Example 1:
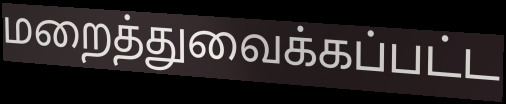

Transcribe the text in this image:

மறைத்துவைக்கப்பட்ட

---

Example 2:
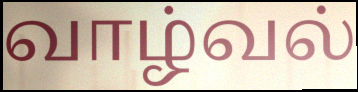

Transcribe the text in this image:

வாழ்வல்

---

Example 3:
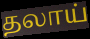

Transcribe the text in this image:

தலாய்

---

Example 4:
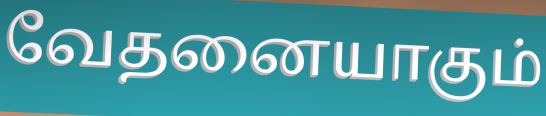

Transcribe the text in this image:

வேதனையாகும்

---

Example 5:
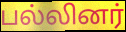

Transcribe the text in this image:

பல்லினர்